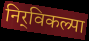
निर्विकल्पा